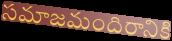
సమాజమందిరానికి